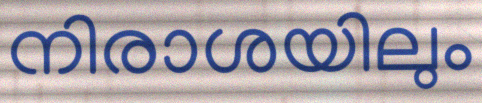
നിരാശയിലും